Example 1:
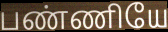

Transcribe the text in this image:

பண்ணியே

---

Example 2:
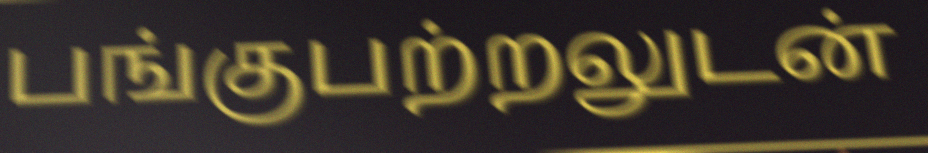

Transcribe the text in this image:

பங்குபற்றலுடன்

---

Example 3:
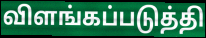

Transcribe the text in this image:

விளங்கப்படுத்தி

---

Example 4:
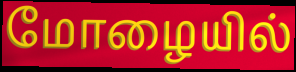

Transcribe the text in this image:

மோழையில்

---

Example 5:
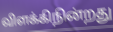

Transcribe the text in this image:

விளக்கிநின்றது